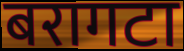
बरागटा